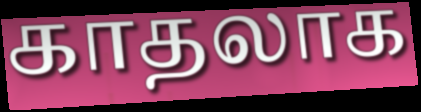
காதலாக